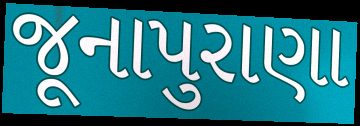
જૂનાપુરાણા